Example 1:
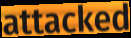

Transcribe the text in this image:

attacked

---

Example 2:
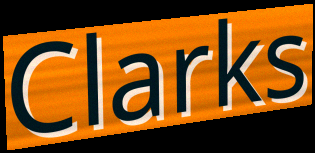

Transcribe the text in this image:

Clarks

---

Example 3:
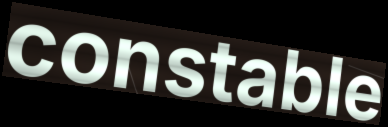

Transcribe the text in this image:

constable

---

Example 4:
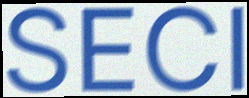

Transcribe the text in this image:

SECI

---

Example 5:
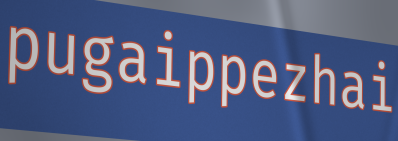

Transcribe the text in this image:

pugaippezhai